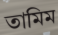
তামিম